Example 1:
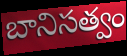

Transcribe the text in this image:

బానిసత్వం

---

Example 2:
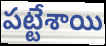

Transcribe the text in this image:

పట్టేశాయి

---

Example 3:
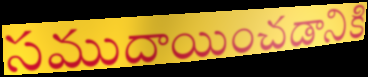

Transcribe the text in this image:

సముదాయించడానికి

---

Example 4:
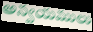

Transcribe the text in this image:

అన్వయములు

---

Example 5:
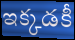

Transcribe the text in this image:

ఇక్కడకీ